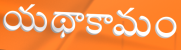
యథాకామం